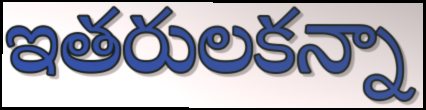
ఇతరులకన్నా